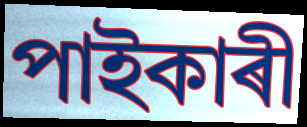
পাইকাৰী